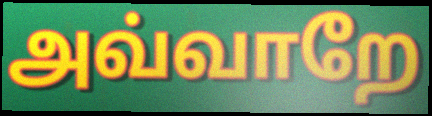
அவ்வாறே